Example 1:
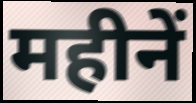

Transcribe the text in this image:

महीनें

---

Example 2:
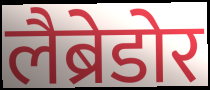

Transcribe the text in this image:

लैब्रेडोर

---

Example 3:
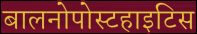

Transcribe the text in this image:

बालनोपोस्टहाइटिस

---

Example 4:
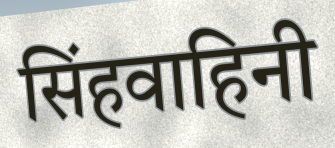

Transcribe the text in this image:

सिंहवाहिनी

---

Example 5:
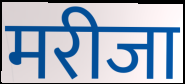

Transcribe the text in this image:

मरीजा